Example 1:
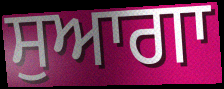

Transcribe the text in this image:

ਸੁਆਗਾ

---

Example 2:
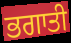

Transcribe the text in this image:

ਭਗਾਤੀ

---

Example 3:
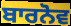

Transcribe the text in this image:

ਬਾਰਨੋਵ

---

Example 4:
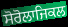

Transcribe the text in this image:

ਸੋਰੋਲਾਜਿਕਲ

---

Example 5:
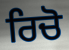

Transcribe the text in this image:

ਰਿਚੋ